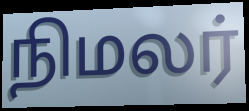
நிமலர்